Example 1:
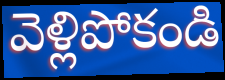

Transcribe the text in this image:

వెళ్లిపోకండి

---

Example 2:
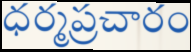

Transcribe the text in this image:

ధర్మప్రచారం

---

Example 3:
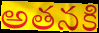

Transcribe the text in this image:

అతనకి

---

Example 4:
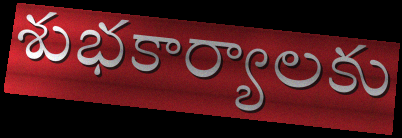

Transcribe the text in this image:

శుభకార్యాలకు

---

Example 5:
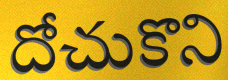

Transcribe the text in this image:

దోచుకొని